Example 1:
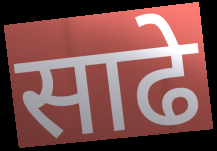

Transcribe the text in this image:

साढे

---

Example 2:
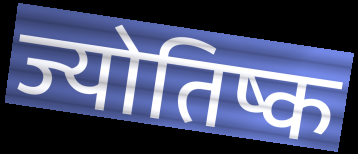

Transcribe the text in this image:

ज्योतिष्क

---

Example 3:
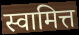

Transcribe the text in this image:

स्वामित्त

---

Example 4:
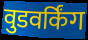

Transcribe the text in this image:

वुडवर्किंग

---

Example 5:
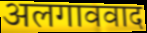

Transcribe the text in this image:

अलगाववाद